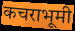
कचराभूमी